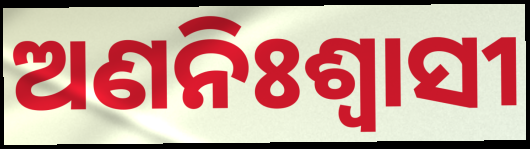
ଅଣନିଃଶ୍ଵାସୀ